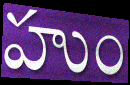
హుం